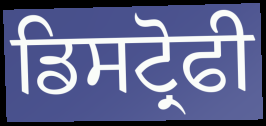
ਡਿਸਟ੍ਰੋਫੀ